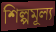
শিল্পমূল্য